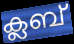
ക്ലബ്